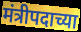
मंत्रीपदाच्या